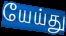
யேய்து